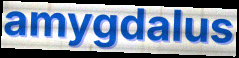
amygdalus